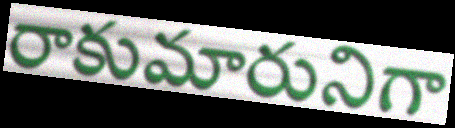
రాకుమారునిగా